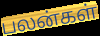
பலன்கள்